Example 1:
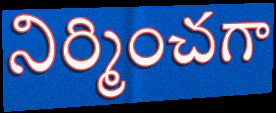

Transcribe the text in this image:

నిర్మించగా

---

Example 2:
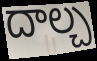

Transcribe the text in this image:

దాల్చ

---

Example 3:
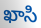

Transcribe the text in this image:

ఖాసి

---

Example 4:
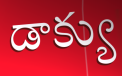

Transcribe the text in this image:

డాక్యు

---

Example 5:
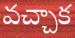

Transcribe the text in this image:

వచ్చాక